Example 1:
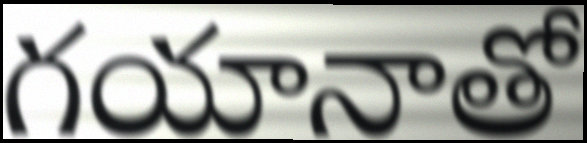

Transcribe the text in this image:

గయానాతో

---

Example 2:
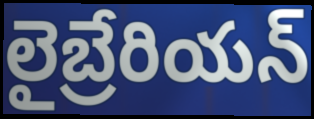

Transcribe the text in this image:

లైబ్రేరియన్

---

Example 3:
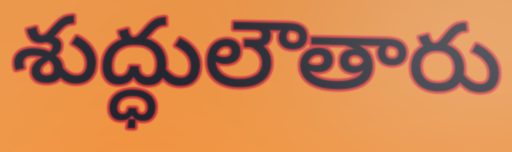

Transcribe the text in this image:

శుద్ధులౌతారు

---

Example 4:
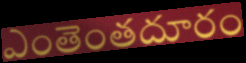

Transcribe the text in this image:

ఎంతెంతదూరం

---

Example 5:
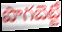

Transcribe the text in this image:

పొగబెట్టే